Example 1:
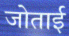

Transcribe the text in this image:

जोताई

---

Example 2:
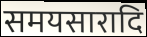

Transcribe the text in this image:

समयसारादि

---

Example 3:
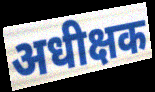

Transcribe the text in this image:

अधीक्षक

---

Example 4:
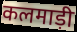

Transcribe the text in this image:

कलमाड़ी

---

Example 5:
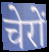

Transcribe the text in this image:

चेरों